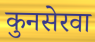
कुनसेरवा